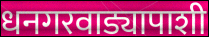
धनगरवाड्यापाशी